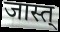
जास्त्